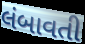
લંબાવતી